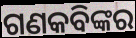
ଗଣକବିଙ୍କର